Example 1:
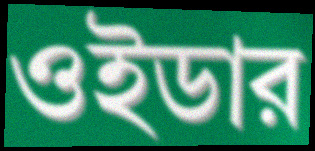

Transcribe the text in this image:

ওইডার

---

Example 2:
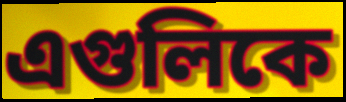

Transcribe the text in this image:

এগুলিকে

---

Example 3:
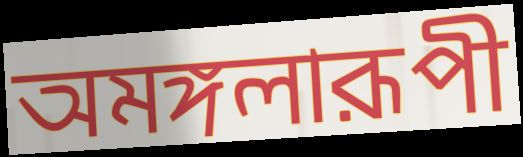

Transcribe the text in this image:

অমঙ্গলারূপী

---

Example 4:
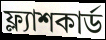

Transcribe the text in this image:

ফ্ল্যাশকার্ড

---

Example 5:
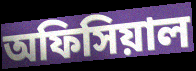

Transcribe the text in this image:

অফিসিয়াল